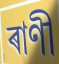
ৰাণী